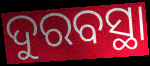
ଦୁରବସ୍ଥା